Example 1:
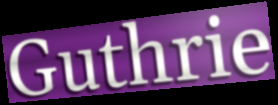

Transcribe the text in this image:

Guthrie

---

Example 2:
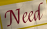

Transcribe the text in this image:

Need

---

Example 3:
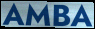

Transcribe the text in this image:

AMBA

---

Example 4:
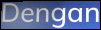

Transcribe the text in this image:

Dengan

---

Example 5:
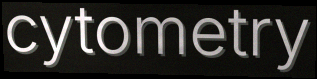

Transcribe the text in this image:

cytometry